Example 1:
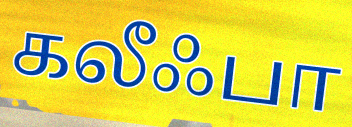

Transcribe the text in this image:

கலீஃபா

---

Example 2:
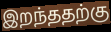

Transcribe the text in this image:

இறந்ததற்கு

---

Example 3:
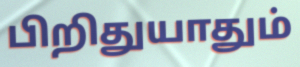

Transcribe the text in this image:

பிறிதுயாதும்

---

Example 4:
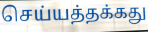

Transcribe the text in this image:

செய்யத்தக்கது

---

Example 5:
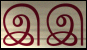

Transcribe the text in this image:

இஇ